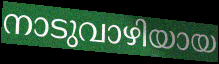
നാടുവാഴിയായ